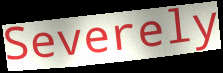
Severely